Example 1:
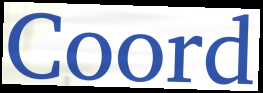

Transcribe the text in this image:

Coord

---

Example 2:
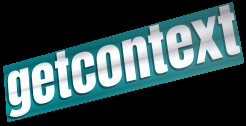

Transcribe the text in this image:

getcontext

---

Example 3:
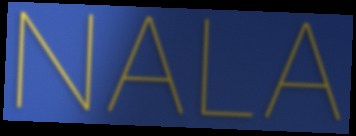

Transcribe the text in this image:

NALA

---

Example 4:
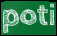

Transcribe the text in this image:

poti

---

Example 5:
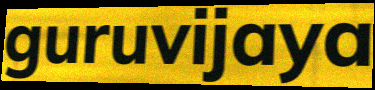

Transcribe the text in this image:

guruvijaya